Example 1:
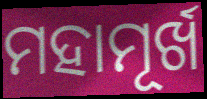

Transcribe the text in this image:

ମହାମୂର୍ଖ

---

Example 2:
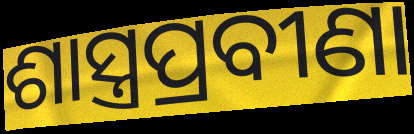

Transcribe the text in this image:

ଶାସ୍ତ୍ରପ୍ରବୀଣା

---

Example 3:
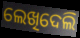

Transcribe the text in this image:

ଲେଖିଦେଲି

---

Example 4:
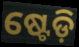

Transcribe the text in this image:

ଷ୍ଟେଡ଼ି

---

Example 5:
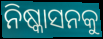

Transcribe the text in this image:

ନିଷ୍କାସନକୁ